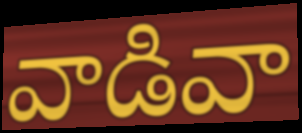
వాడివా